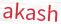
akash